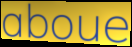
aboue